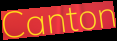
Canton